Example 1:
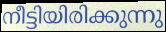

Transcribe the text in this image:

നീട്ടിയിരിക്കുന്നു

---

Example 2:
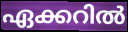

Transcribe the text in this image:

ഏക്കറിൽ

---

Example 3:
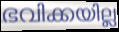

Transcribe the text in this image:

ഭവിക്കയില്ല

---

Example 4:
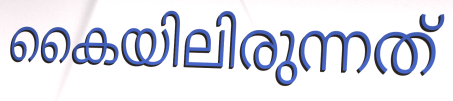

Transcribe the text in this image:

കൈയിലിരുന്നത്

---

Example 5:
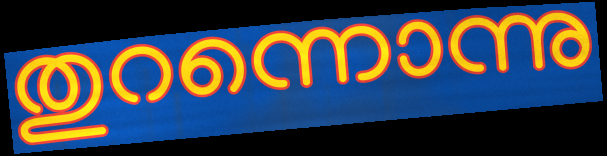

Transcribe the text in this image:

തുറന്നൊന്നു